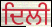
ਦਿਲੀ